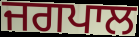
ਜਗਪਾਲ